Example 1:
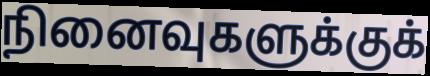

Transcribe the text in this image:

நினைவுகளுக்குக்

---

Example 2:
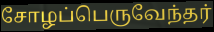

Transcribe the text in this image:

சோழப்பெருவேந்தர்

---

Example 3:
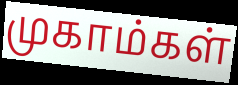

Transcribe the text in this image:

முகாம்கள்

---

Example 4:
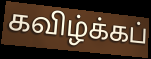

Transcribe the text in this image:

கவிழ்க்கப்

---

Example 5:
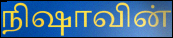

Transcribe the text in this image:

நிஷாவின்